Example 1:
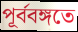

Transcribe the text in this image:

পূর্ববঙ্গতে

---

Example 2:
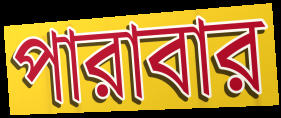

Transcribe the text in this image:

পারাবার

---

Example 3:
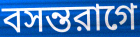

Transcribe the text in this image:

বসন্তরাগে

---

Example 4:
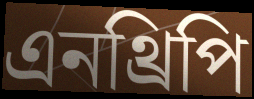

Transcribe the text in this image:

এনথ্রিপি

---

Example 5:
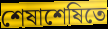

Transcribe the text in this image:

শেষাশেষিতে